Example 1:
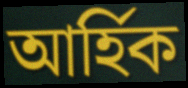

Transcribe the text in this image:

আৰ্হিক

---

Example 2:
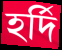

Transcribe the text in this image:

হৰ্দি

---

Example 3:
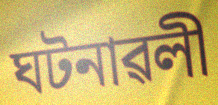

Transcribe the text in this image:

ঘটনাৱলী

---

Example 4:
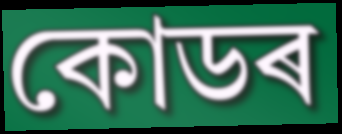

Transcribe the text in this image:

কোডৰ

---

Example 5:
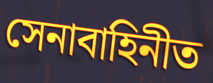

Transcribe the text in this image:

সেনাবাহিনীত